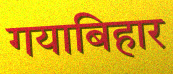
गयाबिहार